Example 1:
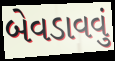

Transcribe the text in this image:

બેવડાવવું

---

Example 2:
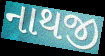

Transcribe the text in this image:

નાથજી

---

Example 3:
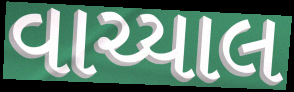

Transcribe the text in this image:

વાચ્યાલ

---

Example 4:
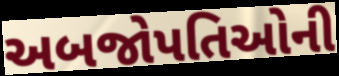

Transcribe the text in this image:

અબજોપતિઓની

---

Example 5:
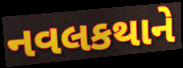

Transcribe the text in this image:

નવલકથાને